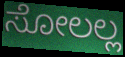
ಸೋಲಲ್ಲ